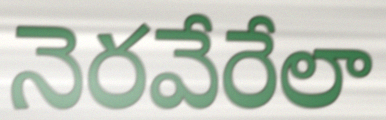
నెరవేరేలా